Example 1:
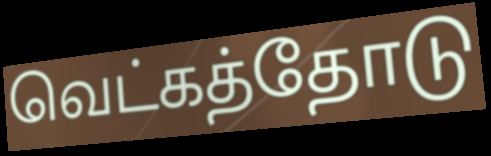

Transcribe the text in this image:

வெட்கத்தோடு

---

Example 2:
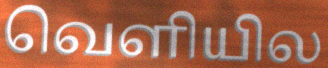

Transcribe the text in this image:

வெளியில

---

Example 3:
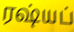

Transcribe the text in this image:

ரஷ்யப்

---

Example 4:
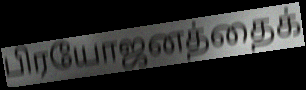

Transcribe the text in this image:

பிரயோஜனத்தைக்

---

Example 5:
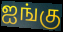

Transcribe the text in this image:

ஐங்கு